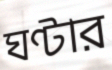
ঘণ্টার